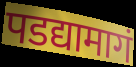
पडद्यामागं